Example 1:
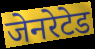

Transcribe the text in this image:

जेनरेटेड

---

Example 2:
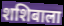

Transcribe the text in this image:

शशिबाला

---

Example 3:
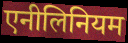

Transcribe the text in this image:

एनीलिनियम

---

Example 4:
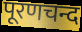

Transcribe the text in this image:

पूरणचन्द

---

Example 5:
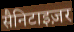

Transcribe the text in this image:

सैनिटाइज़र